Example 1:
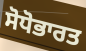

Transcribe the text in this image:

ਸੋਧੋਭਾਰਤ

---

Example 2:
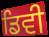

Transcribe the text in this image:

ਡਿਵੀ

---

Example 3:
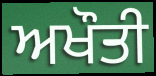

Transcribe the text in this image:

ਅਖੌਤੀ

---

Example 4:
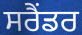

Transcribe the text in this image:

ਸਰੈਂਡਰ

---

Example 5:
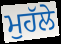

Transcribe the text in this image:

ਮੁਹੱਲੇ